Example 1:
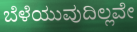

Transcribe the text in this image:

ಬೆಳೆಯುವುದಿಲ್ಲವೇ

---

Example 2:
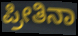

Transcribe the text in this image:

ಪ್ರೀತಿನಾ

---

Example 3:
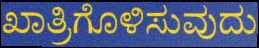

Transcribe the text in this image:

ಖಾತ್ರಿಗೊಳಿಸುವುದು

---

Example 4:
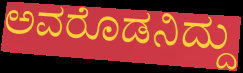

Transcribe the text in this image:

ಅವರೊಡನಿದ್ದು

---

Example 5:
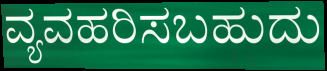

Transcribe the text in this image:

ವ್ಯವಹರಿಸಬಹುದು